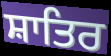
ਸ਼ਾਤਿਰ